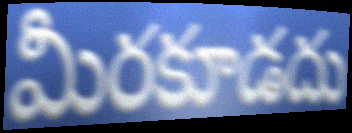
మీరకూడదు